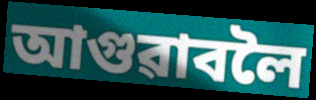
আগুৱাবলৈ